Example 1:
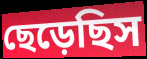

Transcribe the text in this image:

ছেড়েছিস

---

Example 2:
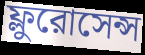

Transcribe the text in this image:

ফ্লুরোসেন্স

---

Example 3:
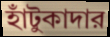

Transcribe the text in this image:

হাঁটুকাদার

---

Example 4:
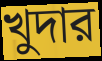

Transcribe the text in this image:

খুদার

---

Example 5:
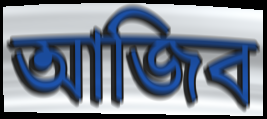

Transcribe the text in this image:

আজিব